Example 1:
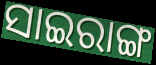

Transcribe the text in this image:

ସାଇରାଙ୍ଗ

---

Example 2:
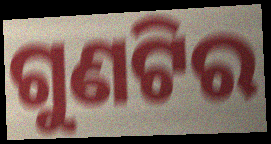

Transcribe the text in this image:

ଗୁଣଟିର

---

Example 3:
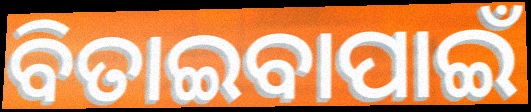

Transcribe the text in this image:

ବିତାଇବାପାଇଁ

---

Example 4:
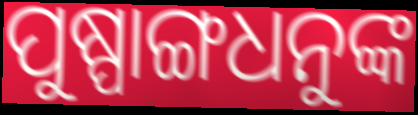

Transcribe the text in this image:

ପୁଷ୍ପାଙ୍ଗଧନୁଙ୍କ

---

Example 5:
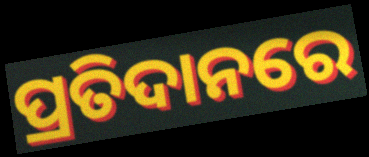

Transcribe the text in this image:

ପ୍ରତିଦାନରେ